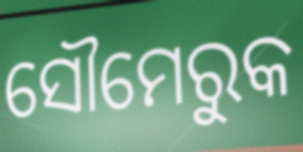
ସୌମେରୁକ